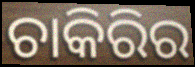
ଚାକିରିର